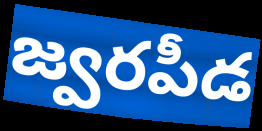
జ్వరపీడ